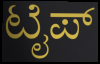
ಟೈಪ್